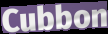
Cubbon